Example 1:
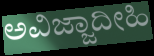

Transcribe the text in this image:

ಅವಿಜ್ಜಾದೀಹಿ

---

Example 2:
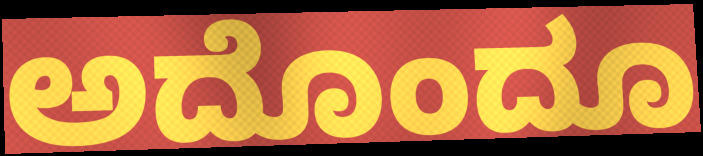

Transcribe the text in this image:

ಅದೊಂದೂ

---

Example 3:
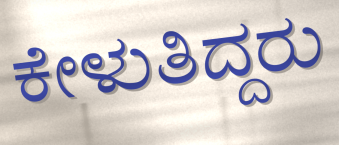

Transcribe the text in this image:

ಕೇಳುತಿದ್ದರು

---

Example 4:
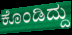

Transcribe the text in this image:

ಕೊಂಡಿದ್ದು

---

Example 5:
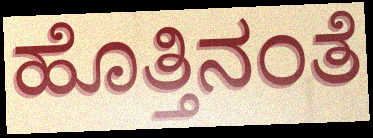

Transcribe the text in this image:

ಹೊತ್ತಿನಂತೆ